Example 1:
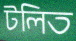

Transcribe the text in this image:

টলিত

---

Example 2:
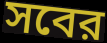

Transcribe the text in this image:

সবের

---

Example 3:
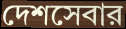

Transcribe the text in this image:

দেশসেবার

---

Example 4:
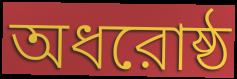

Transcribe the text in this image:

অধরোষ্ঠ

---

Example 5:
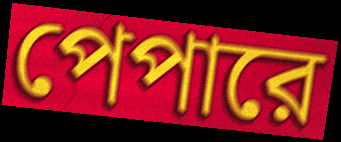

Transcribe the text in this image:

পেপারে